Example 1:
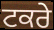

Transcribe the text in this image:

ਟਕਰੇ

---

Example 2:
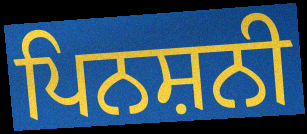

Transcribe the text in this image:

ਪਿਨਸ਼ਨੀ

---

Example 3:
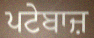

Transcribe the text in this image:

ਪਟੇਬਾਜ਼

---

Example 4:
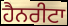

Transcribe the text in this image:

ਹੈਨਰੀਟਾ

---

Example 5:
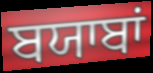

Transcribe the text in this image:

ਬਯਾਬਾਂ